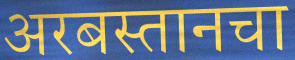
अरबस्तानचा